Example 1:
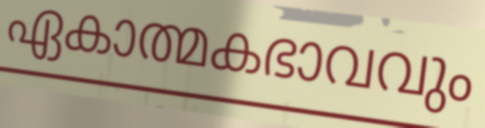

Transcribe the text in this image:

ഏകാത്മകഭാവവും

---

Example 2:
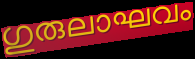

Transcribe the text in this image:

ഗുരുലാഘവം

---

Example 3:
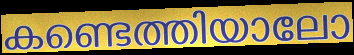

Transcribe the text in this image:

കണ്ടെത്തിയാലോ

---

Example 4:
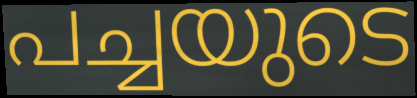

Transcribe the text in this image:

പച്ചയുടെ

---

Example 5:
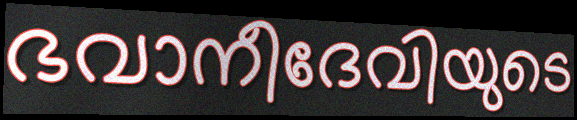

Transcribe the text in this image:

ഭവാനീദേവിയുടെ